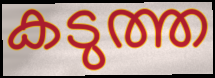
കടുത്ത